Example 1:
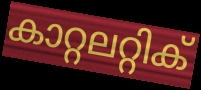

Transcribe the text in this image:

കാറ്റലറ്റിക്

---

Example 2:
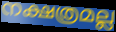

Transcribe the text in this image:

നക്ഷത്രമല്ല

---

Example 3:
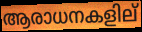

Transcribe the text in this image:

ആരാധനകളില്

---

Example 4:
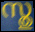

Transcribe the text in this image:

സ്തു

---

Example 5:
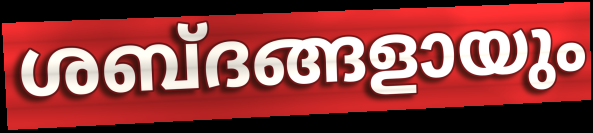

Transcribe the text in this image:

ശബ്ദങ്ങളായും